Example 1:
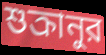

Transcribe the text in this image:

শুক্রানুর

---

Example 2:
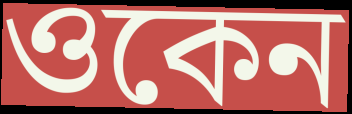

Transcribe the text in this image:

ওকেন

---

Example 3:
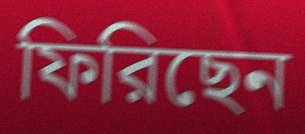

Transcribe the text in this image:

ফিরিছেন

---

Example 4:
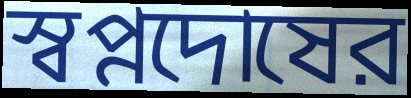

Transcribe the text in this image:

স্বপ্নদোষের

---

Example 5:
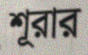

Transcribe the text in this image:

শূরার